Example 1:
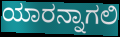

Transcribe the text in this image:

ಯಾರನ್ನಾಗಲಿ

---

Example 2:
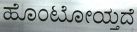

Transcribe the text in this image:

ಹೊಂಟೋಯ್ತದೆ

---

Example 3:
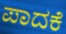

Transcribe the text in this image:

ಪಾದಕೆ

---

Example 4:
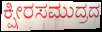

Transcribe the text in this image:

ಕ್ಷೀರಸಮುದ್ರದ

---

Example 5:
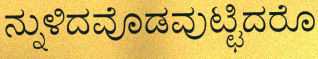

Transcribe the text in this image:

ನ್ನುಳಿದವೊಡವುಟ್ಟಿದರೊ